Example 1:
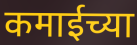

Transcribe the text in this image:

कमाईच्या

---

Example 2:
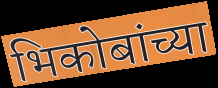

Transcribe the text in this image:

भिकोबांच्या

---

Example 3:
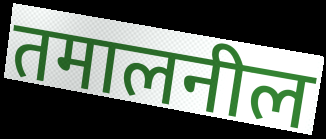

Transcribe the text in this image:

तमालनील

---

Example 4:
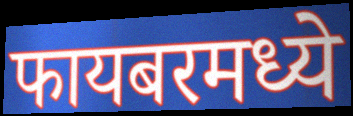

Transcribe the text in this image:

फायबरमध्ये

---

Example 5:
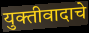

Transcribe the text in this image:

युक्तीवादाचे